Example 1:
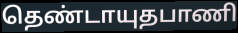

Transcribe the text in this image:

தெண்டாயுதபாணி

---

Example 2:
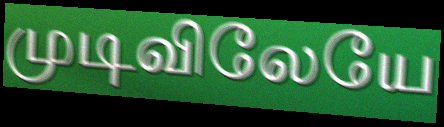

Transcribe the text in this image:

முடிவிலேயே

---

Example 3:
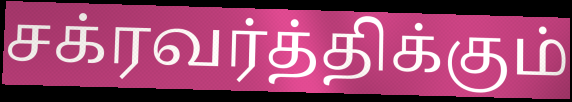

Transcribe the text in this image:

சக்ரவர்த்திக்கும்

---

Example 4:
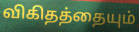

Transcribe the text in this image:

விகிதத்தையும்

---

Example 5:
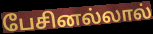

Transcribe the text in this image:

பேசினல்லால்